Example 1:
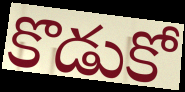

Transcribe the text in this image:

కొడుకో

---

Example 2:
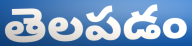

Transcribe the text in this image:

తెలపడం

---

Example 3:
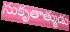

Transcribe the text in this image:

సుకృతాత్ముడు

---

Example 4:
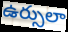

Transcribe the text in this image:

ఉర్సులా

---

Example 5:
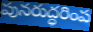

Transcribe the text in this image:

పునరుద్ధరింప